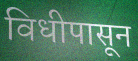
विधीपासून